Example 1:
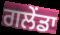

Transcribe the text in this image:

ਗਲੇਂਡਾ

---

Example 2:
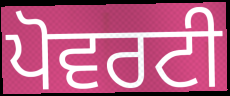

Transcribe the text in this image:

ਪੋਵਰਟੀ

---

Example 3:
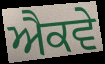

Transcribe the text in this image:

ਐਕਵੇ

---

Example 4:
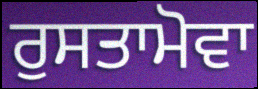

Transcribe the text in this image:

ਰੁਸਤਾਮੋਵਾ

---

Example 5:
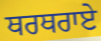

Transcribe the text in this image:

ਥਰਥਰਾਏ